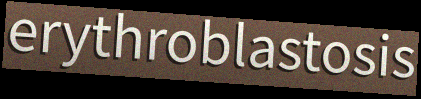
erythroblastosis